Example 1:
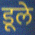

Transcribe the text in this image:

डूले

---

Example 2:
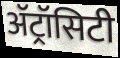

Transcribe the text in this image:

ॲट्रॉसिटी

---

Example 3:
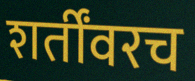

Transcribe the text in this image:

शर्तींवरच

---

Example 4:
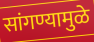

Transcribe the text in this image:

सांगण्यामुळे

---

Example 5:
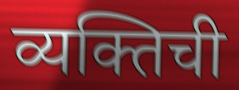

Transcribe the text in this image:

व्यक्तिची